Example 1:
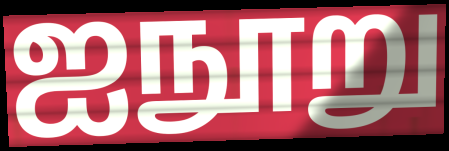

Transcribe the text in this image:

ஐநூறு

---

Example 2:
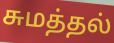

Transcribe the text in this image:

சுமத்தல்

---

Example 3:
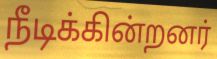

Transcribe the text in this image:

நீடிக்கின்றனர்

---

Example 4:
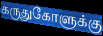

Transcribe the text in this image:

கருதுகோளுக்கு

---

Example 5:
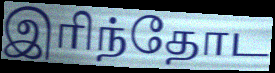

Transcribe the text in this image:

இரிந்தோட